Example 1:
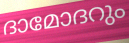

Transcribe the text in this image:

ദാമോദറും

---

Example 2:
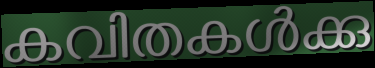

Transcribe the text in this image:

കവിതകൾക്കു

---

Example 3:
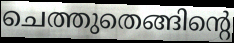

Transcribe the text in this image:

ചെത്തുതെങ്ങിന്റെ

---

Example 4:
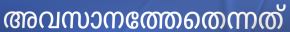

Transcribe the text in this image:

അവസാനത്തേതെന്നത്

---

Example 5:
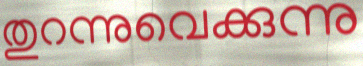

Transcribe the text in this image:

തുറന്നുവെക്കുന്നു